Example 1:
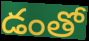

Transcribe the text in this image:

డంతో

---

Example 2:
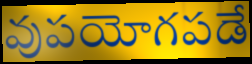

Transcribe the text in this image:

వుపయోగపడే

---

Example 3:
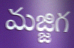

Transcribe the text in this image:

మజ్జిగ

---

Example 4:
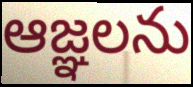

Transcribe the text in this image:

ఆజ్ఞలను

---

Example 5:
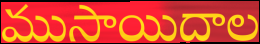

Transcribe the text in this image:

ముసాయిదాల